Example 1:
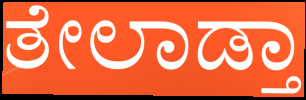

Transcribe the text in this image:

ತೇಲಾಡ್ತಾ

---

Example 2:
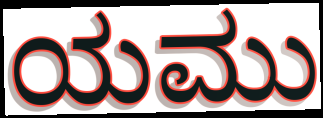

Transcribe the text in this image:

ಯಮು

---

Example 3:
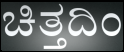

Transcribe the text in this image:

ಚಿತ್ತದಿಂ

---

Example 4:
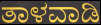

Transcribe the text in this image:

ತಾಳವಾಡಿ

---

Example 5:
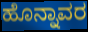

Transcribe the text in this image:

ಹೊನ್ನಾವರ